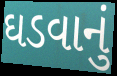
ઘડવાનું